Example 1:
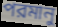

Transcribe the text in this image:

পরমানু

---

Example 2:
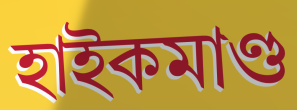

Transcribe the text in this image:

হাইকমাণ্ড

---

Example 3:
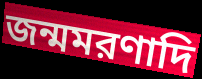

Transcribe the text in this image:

জন্মমরণাদি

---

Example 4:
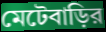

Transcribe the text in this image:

মেটেবাড়ির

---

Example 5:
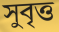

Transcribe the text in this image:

সুবৃত্ত